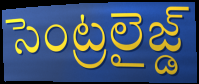
సెంట్రలైజ్డ్